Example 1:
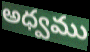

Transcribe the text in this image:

అధ్వము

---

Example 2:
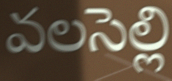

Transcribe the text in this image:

వలసెల్లి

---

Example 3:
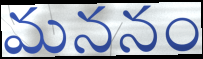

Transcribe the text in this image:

మననం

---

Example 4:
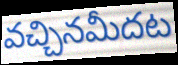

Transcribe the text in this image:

వచ్చినమీదట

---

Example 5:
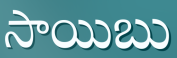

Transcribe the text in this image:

సాయిబు